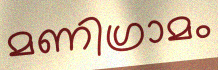
മണിഗ്രാമം